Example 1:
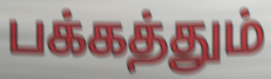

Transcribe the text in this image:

பக்கத்தும்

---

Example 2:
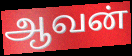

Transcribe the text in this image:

ஆவன்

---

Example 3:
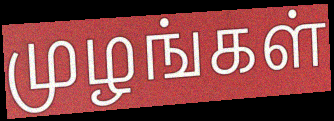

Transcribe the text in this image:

முழங்கள்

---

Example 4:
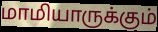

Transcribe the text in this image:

மாமியாருக்கும்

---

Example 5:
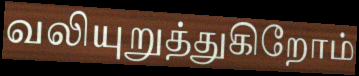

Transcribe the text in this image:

வலியுறுத்துகிறோம்